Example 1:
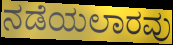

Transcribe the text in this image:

ನಡೆಯಲಾರವು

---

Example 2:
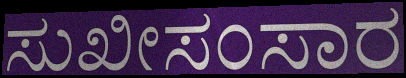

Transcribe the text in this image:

ಸುಖೀಸಂಸಾರ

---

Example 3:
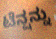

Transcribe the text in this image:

ಟೆನ್ಷನ್ನು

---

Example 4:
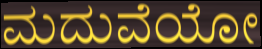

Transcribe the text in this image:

ಮದುವೆಯೋ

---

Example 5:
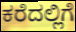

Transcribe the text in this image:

ಕರೆದಲ್ಲಿಗೆ